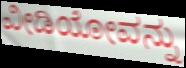
ವೀಡಿಯೋವನ್ನು